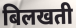
बिलखती